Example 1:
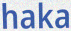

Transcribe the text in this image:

haka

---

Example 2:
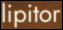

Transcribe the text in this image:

lipitor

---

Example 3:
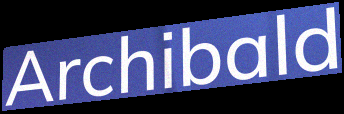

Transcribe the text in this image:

Archibald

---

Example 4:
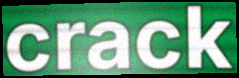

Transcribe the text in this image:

crack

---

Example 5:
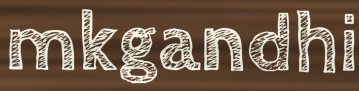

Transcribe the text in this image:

mkgandhi